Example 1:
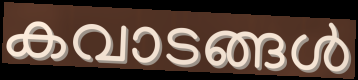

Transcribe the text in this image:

കവാടങ്ങൾ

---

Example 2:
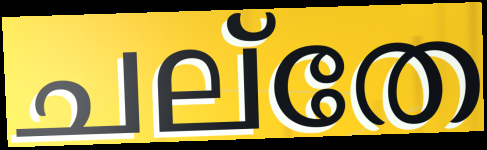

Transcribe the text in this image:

ചല്തേ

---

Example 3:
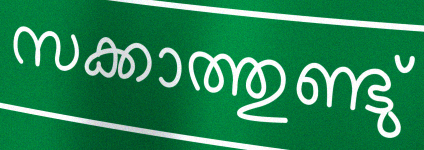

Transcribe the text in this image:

സക്കാത്തുണ്ടു്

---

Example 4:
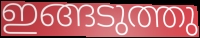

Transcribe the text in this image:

ഇങ്ങടുത്തു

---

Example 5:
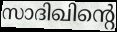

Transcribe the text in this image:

സാദിഖിന്റെ